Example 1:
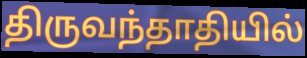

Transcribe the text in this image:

திருவந்தாதியில்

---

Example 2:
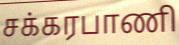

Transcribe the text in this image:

சக்கரபாணி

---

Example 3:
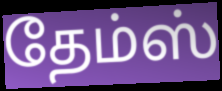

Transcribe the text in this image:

தேம்ஸ்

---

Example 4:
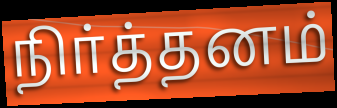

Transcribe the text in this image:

நிர்த்தனம்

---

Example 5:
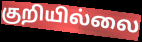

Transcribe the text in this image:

குறியில்லை